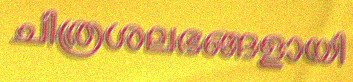
ചിത്രശലഭങ്ങളായി